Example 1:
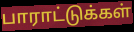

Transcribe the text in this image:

பாராட்டுக்கள்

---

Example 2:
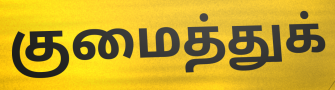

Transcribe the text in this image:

குமைத்துக்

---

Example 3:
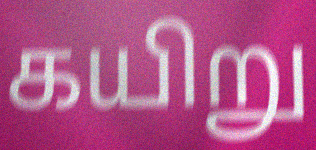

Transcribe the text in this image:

கயிறு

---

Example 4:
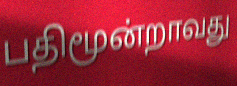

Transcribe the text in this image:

பதிமூன்றாவது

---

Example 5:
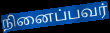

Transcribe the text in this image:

நினைப்பவர்